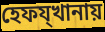
হেফয্খানায়